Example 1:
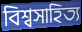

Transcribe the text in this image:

বিশ্বসাহিত্য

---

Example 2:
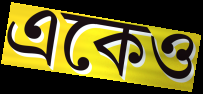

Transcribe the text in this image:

একেও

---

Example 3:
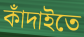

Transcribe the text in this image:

কাঁদাইতে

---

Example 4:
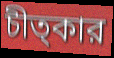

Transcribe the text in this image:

চীত্কার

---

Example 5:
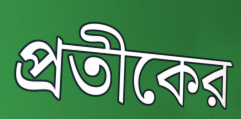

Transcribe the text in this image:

প্রতীকের